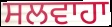
ਸਲਵਾਹਾ